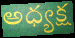
అధ్యక్ష